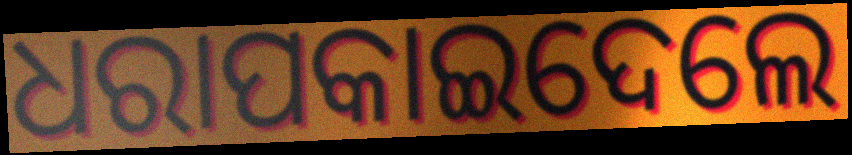
ଧରାପକାଇଦେଲେ